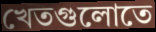
খেতগুলোতে